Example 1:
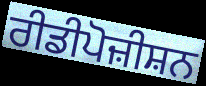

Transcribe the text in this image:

ਰੀਡੀਪੋਜ਼ੀਸ਼ਨ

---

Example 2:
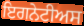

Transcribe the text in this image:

ਇਗਨੇਟੀਅਸ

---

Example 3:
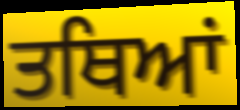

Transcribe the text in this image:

ਤਥਿਆਂ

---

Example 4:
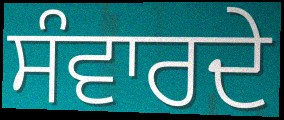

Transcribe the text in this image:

ਸੰਵਾਰਦੇ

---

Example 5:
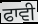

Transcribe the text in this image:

ਫਾਵੀ